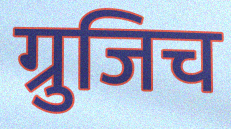
ग्रुजिच